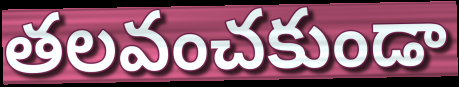
తలవంచకుండా